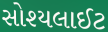
સોશ્યલાઈટ